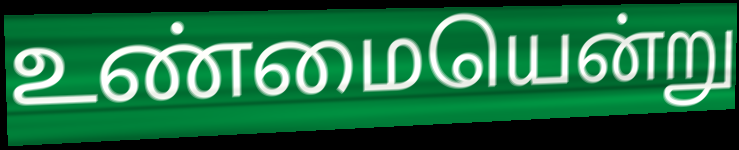
உண்மையென்று